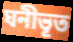
ঘনীভূত